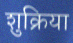
शुक्रिया